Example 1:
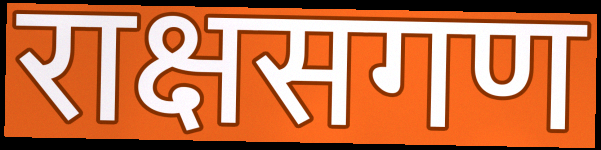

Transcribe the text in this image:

राक्षसगण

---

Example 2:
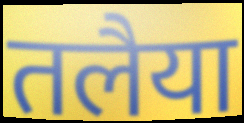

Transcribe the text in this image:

तलैया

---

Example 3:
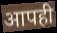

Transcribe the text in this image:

आपही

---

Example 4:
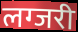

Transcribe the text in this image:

लग्जरी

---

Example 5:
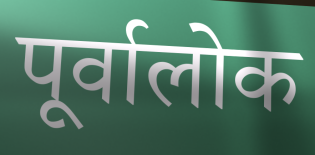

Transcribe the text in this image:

पूर्वालोक